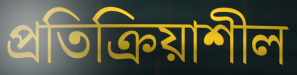
প্ৰতিক্ৰিয়াশীল